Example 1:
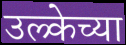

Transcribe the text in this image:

उल्केच्या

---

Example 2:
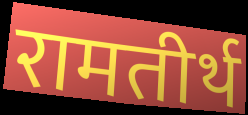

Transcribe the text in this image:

रामतीर्थ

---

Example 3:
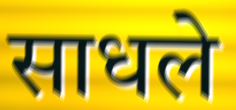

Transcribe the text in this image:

साधले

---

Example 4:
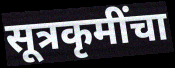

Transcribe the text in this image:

सूत्रकृमींचा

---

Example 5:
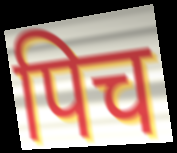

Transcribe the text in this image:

पिच